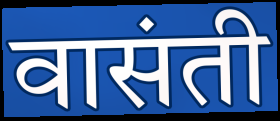
वासंती